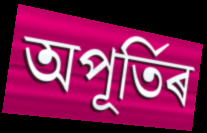
অপূৰ্তিৰ